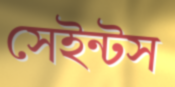
সেইন্টস